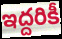
ఇద్దరికీ